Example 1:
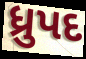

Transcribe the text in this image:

ધ્રુપદ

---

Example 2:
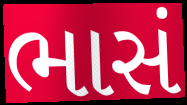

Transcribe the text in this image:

ભાસં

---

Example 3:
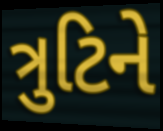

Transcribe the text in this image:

ત્રુટિને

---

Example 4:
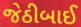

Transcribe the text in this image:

જેઠીબાઈ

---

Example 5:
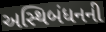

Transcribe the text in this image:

અસ્થિબંધનની